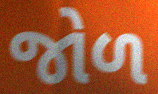
જોળ